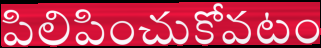
పిలిపించుకోవటం